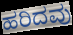
ಹರಿದವು